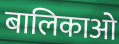
बालिकाओ